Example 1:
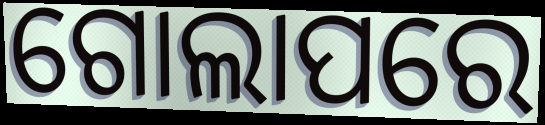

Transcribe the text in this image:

ଗୋଲାପରେ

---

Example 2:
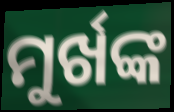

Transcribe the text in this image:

ମୁର୍ଖଙ୍କ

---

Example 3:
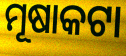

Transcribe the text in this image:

ମୂଷାକଟା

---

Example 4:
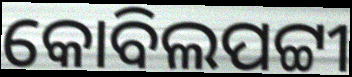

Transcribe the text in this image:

କୋବିଲପଟ୍ଟୀ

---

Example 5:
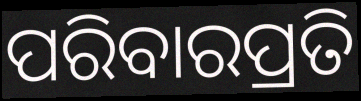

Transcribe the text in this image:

ପରିବାରପ୍ରତି